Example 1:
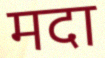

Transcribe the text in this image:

मदा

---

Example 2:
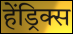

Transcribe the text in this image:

हेंड्रिक्स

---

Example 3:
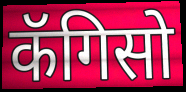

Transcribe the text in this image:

कॅगिसो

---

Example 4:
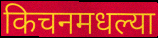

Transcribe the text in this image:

किचनमधल्या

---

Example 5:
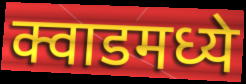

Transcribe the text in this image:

क्वाडमध्ये